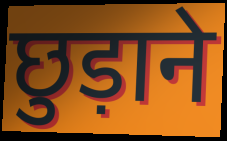
छुड़ाने